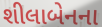
શીલાબેનના